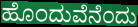
ಹೊಂದುವೆನೆಂದು